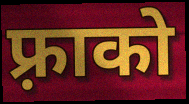
फ़्राको